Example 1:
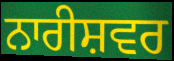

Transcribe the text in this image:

ਨਾਰੀਸ਼ਵਰ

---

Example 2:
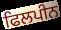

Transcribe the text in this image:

ਫਿਲਪੀਨ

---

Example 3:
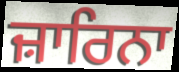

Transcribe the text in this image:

ਜ਼ਾਰਿਨਾ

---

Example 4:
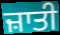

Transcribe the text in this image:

ਜ਼ਾਤੀ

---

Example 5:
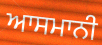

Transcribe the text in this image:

ਆਸਮਾਨੀ